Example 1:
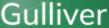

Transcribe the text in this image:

Gulliver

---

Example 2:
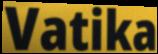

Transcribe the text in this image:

Vatika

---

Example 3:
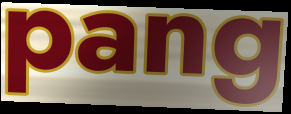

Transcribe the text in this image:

pang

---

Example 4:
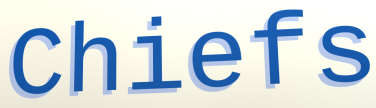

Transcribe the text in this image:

Chiefs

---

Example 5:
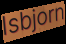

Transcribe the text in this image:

Isbjorn